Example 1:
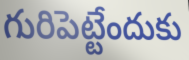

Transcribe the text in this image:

గురిపెట్టేందుకు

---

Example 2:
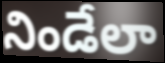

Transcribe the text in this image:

నిండేలా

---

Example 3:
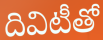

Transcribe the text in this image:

దివిటీతో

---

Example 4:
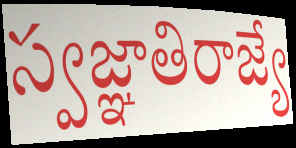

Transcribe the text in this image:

స్వజ్ఞాతిరాజ్యే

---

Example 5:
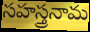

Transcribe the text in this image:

సహస్త్రనామ